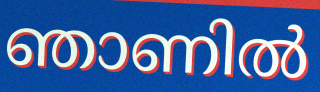
ഞാണിൽ